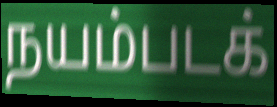
நயம்படக்